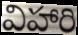
విహారి